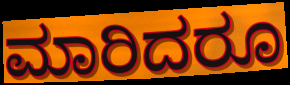
ಮಾರಿದರೂ